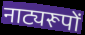
नाट्यरूपों